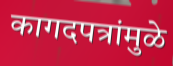
कागदपत्रांमुळे